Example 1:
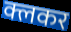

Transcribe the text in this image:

क्लकर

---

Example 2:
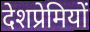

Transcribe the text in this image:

देशप्रेमियों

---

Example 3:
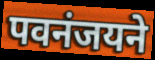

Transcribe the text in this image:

पवनंजयने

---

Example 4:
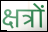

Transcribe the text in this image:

क्षत्रों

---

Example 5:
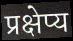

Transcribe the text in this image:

प्रक्षेप्य